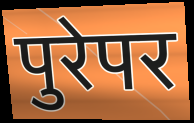
पुरेपर